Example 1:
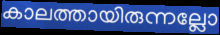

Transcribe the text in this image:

കാലത്തായിരുന്നല്ലോ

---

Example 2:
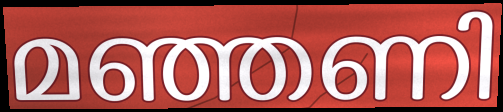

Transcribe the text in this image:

മഞ്ഞണി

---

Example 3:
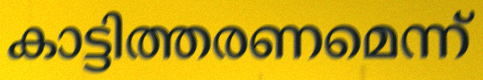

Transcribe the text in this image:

കാട്ടിത്തരണമെന്ന്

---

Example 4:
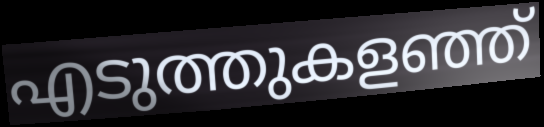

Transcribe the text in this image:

എടുത്തുകളഞ്ഞ്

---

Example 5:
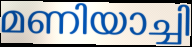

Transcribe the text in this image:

മണിയാച്ചി